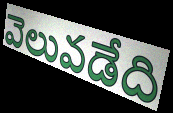
వెలువడేది